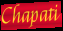
Chapati